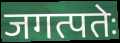
जगत्पतेः